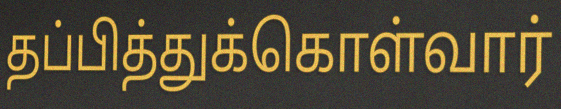
தப்பித்துக்கொள்வார்